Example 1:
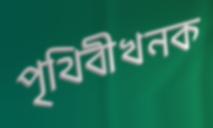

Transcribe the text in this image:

পৃথিবীখনক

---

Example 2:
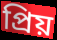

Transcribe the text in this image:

প্ৰিয়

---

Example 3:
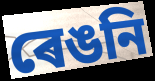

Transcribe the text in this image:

ৰেঙনি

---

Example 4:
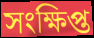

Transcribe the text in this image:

সংক্ষিপ্ত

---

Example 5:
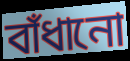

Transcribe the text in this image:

বাঁধানো